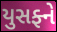
યુસફ્ને